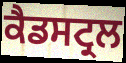
ਕੈਡਸਟ੍ਰਲ